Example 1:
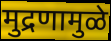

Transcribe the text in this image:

मुद्रणामुळे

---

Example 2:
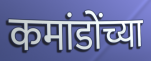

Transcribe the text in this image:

कमांडोंच्या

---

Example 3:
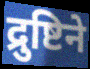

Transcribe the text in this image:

द्रुष्टिने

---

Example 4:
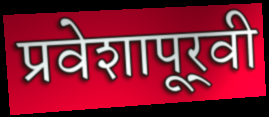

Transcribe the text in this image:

प्रवेशापूर्वी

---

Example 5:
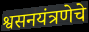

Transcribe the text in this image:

श्वसनयंत्रणेचे